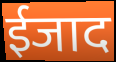
ईजाद